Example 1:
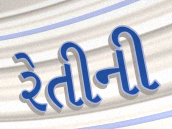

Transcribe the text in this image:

રેતીની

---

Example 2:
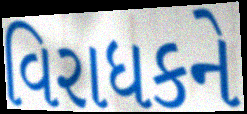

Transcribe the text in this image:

વિરાધકને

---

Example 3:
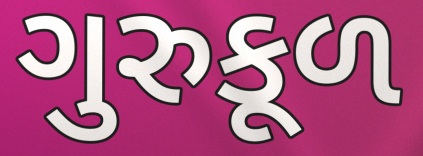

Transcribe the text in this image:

ગુરુકૂળ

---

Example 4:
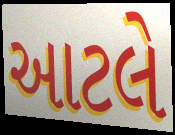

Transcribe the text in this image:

આટલે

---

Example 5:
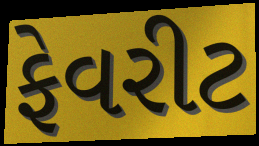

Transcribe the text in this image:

ફેવરીટ